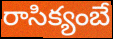
రాసిక్యంబే